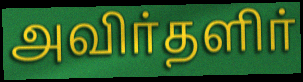
அவிர்தளிர்